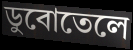
ডুবোতেলে